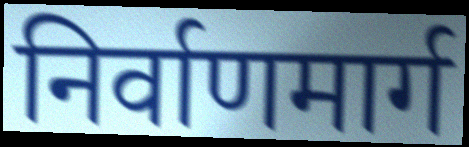
निर्वाणमार्ग